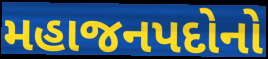
મહાજનપદોનો